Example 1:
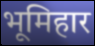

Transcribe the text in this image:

भूमिहार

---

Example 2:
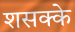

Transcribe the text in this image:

शसक्के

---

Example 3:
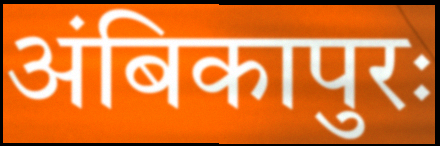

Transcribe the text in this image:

अंबिकापुरः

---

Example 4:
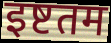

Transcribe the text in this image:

इष्टतम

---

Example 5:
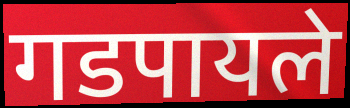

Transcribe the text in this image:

गडपायले